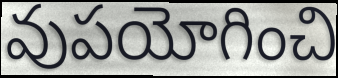
వుపయోగించి